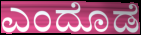
ಎಂದೊಡೆ